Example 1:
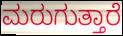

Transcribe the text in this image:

ಮರುಗುತ್ತಾರೆ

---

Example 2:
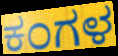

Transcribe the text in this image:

ಕಂಗಳ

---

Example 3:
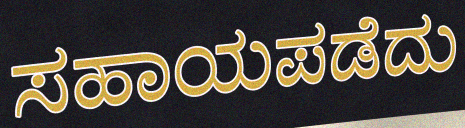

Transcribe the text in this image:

ಸಹಾಯಪಡೆದು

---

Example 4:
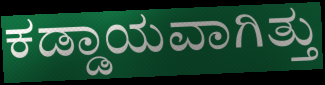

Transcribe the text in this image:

ಕಡ್ಡಾಯವಾಗಿತ್ತು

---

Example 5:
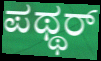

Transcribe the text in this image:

ಪಥ್ಥರ್